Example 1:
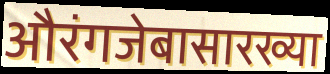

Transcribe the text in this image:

औरंगजेबासारख्या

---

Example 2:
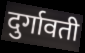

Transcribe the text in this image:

दुर्गावती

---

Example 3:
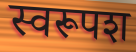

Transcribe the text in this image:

स्वरूपश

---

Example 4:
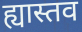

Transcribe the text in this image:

ह्यास्तव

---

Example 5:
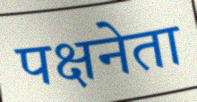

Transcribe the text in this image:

पक्षनेता